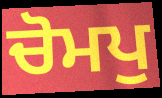
ਚੋਮਪੁ